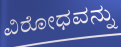
ವಿರೋಧವನ್ನು